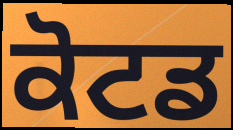
ਕੋਟਡ